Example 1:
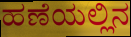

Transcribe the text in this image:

ಹಣೆಯಲ್ಲಿನ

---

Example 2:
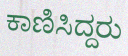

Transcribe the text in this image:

ಕಾಣಿಸಿದ್ದರು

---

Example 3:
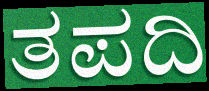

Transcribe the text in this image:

ತಪದಿ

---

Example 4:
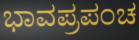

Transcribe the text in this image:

ಭಾವಪ್ರಪಂಚ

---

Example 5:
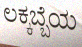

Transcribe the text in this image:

ಲಕ್ಕಬ್ಬೆಯ